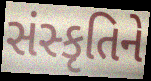
સંસ્કૃતિને